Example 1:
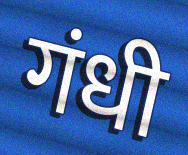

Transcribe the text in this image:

गंधी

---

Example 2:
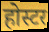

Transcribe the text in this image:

होस्टर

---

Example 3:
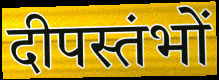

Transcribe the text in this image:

दीपस्तंभों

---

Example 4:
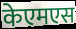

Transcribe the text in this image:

केएमएस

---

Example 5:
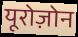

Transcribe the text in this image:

यूरोज़ोन